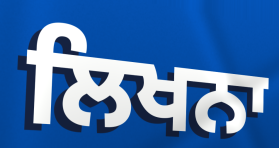
ਲਿਖਨਾ